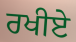
ਰਖੀਏ